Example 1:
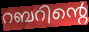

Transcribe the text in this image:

റബറിന്റെ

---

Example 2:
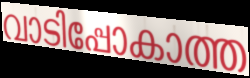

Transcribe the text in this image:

വാടിപ്പോകാത്ത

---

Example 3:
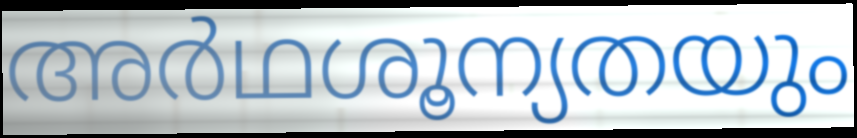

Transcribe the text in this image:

അർഥശൂന്യതയും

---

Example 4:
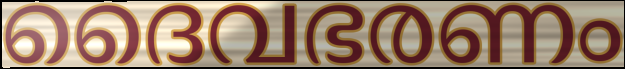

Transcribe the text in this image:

ദൈവഭരണം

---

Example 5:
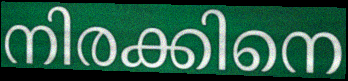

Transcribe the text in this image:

നിരക്കിനെ